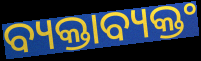
ବ୍ୟକ୍ତାବ୍ୟକ୍ତଂ